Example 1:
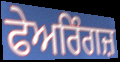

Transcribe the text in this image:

ਫੇਅਰਿੰਗਜ਼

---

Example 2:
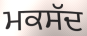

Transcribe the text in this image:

ਮਕਸੱਦ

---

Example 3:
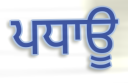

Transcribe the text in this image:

ਪਧਾਊ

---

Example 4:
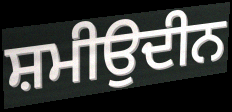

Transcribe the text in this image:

ਸ਼ਮੀਉਦੀਨ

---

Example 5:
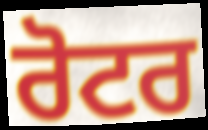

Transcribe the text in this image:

ਰੋਟਰ